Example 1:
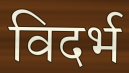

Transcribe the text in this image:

विदर्भ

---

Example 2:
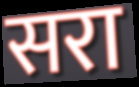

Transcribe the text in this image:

सरा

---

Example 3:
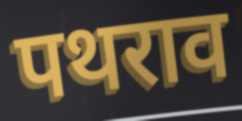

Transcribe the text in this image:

पथराव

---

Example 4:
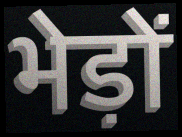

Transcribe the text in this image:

भेड़ों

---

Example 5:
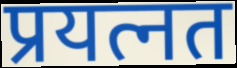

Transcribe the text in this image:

प्रयत्नत